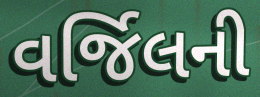
વર્જિલની